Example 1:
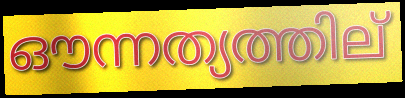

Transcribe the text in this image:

ഔന്നത്യത്തില്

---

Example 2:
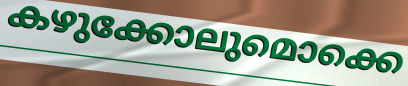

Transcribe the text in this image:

കഴുക്കോലുമൊക്കെ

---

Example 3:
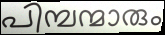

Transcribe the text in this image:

പിമ്പന്മാരും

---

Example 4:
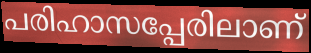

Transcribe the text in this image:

പരിഹാസപ്പേരിലാണ്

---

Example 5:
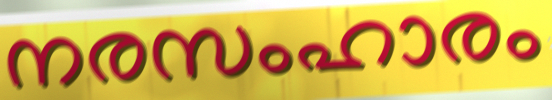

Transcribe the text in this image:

നരസംഹാരം